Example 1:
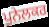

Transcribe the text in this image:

ਪੁਨੇਲਕਰ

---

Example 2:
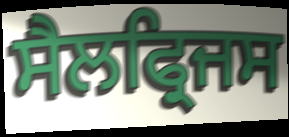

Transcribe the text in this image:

ਸੈਲਫ੍ਰਿਜਸ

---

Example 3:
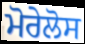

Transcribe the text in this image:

ਮੋਰੇਲੋਸ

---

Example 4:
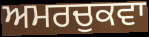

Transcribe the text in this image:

ਅਮਰਚੁਕਵਾ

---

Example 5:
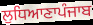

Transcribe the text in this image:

ਲੁਧਿਆਣਾਪੰਜਾਬ